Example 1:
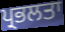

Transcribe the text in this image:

ਪ੍ਰਭਲਤਾ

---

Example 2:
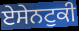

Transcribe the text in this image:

ਏਸੇਨਟੁਕੀ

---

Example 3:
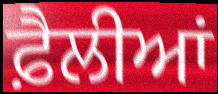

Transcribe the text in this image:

ਫ਼ੈਲੀਆਂ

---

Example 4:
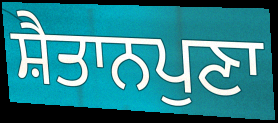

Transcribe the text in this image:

ਸ਼ੈਤਾਨਪੁਣਾ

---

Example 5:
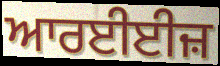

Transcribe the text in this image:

ਆਰਈਈਜ਼